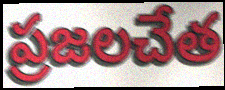
ప్రజలచేత